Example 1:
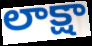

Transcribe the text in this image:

లాక్షా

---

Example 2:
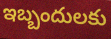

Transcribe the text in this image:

ఇబ్బందులకు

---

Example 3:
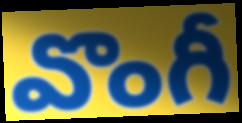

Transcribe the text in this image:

వొంగీ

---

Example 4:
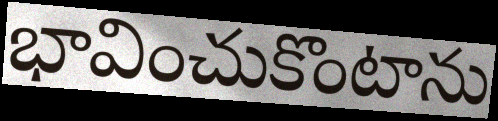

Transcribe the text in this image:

భావించుకొంటాను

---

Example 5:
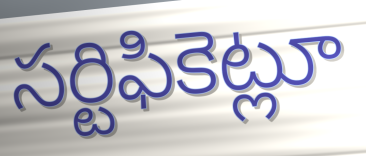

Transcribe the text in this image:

సర్టిఫికెట్లూ